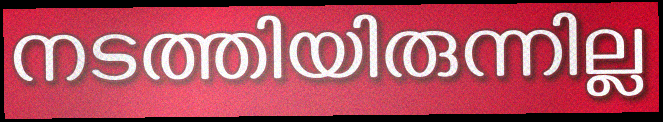
നടത്തിയിരുന്നില്ല